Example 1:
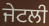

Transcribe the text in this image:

ਜੇਟਲੀ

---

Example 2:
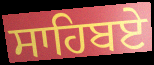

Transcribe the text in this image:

ਸਾਹਿਬਏ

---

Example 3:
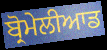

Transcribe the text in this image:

ਬ੍ਰੋਮੇਲੀਆਡ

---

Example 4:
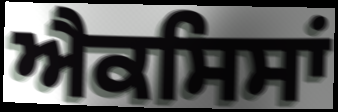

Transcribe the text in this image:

ਐਕਸਿਸਾਂ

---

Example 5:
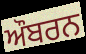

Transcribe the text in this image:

ਔਬਰਨ